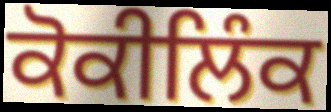
ਕੋਕੀਲਿੰਕ